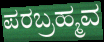
ಪರಬ್ರಹ್ಮವ